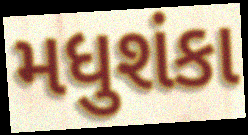
મધુશંકા